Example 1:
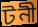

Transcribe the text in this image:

টনী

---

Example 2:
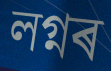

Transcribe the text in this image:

লগ্নৰ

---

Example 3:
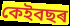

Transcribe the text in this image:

কেইবছৰ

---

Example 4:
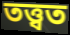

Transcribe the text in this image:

তত্ত্বত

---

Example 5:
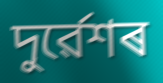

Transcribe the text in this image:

দুৰ্ৱেশৰ